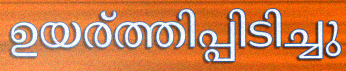
ഉയര്ത്തിപ്പിടിച്ചു